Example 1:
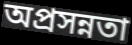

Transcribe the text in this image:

অপ্রসন্নতা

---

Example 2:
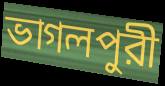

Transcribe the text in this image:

ভাগলপুরী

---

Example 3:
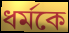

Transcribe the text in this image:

ধর্মকে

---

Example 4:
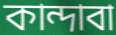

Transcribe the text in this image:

কান্দাবা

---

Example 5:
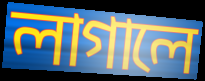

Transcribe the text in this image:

লাগালে